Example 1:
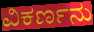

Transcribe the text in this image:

ವಿಕರ್ಣನು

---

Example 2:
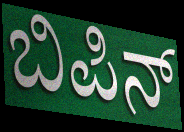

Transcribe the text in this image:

ಬಿಪಿನ್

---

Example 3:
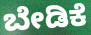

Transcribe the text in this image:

ಬೇಡಿಕೆ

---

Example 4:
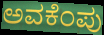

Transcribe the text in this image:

ಅವಕೆಂಪು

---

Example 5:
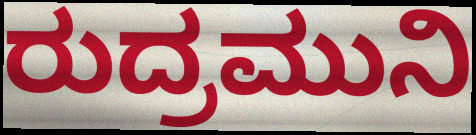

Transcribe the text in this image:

ರುದ್ರಮುನಿ